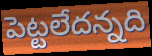
పెట్టలేదన్నది